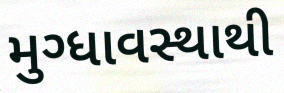
મુગ્ધાવસ્થાથી